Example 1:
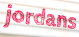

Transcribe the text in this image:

jordans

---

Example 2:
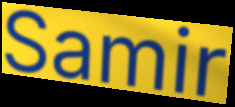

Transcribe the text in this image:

Samir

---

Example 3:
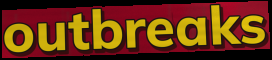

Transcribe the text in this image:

outbreaks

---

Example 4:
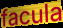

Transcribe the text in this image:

facula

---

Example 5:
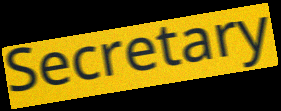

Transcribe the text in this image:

Secretary